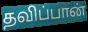
தவிப்பான்